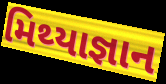
મિથ્યાજ્ઞાન